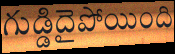
గుడ్డిదైపోయింది